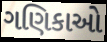
ગણિકાઓ